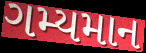
ગમ્યમાન